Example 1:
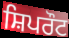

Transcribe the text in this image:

ਸ਼ਿਪਰੌਟ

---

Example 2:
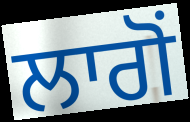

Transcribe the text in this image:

ਲਾਗੋਂ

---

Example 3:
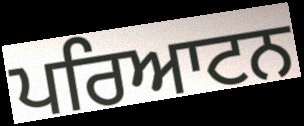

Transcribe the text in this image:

ਪਰਿਆਟਨ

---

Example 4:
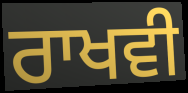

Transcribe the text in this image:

ਰਾਖਵੀ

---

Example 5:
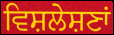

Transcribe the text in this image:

ਵਿਸ਼ਲੇਸ਼ਣਾਂ